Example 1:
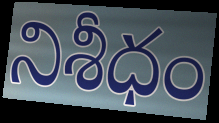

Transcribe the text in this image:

నిశీధం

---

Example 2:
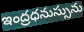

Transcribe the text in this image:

ఇంద్రధనుస్సును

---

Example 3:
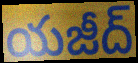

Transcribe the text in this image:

యజీద్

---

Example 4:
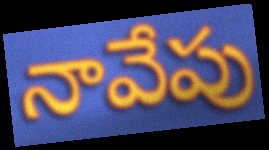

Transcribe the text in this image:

నావేపు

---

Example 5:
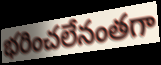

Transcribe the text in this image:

భరించలేనంతగా